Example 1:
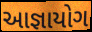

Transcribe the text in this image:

આજ્ઞાયોગ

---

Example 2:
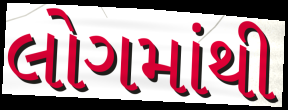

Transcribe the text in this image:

લોગમાંથી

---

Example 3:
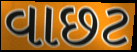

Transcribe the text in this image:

વાછટ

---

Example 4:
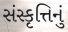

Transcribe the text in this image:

સંસ્કૃત્તિનું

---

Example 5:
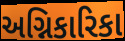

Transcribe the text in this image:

અગ્નિકારિકા